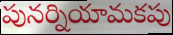
పునర్నియామకపు